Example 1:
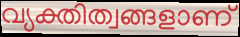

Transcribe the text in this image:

വ്യക്തിത്വങ്ങളാണ്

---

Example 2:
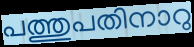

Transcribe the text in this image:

പത്തുപതിനാറു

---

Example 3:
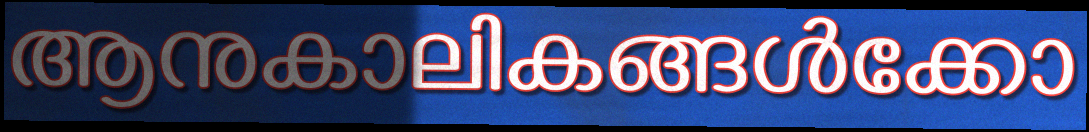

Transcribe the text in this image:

ആനുകാലികങ്ങൾക്കോ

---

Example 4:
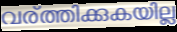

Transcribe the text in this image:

വര്ത്തിക്കുകയില്ല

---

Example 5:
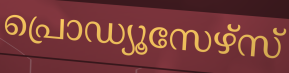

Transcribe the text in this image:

പ്രൊഡ്യൂസേഴ്സ്